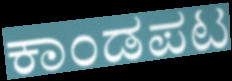
ಕಾಂಡಪಟ